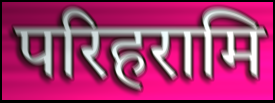
परिहरामि